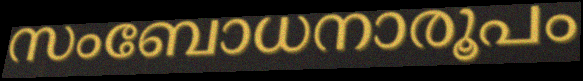
സംബോധനാരൂപം